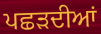
ਪਛੜਦੀਆਂ